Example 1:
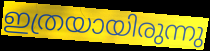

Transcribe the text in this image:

ഇത്രയായിരുന്നു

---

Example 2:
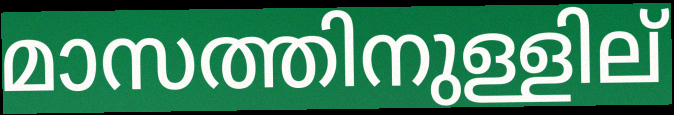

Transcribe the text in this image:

മാസത്തിനുള്ളില്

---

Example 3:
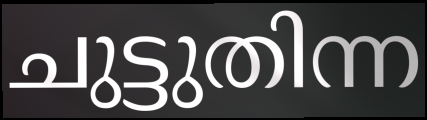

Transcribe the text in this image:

ചുട്ടുതിന്ന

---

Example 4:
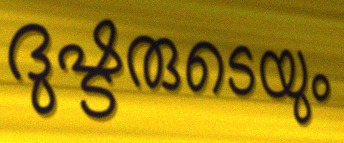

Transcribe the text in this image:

ദുഷ്ടരുടെയും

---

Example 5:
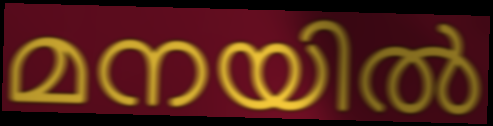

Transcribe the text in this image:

മനയിൽ